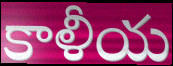
కాళీయ